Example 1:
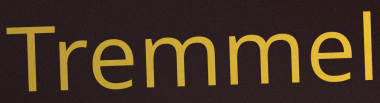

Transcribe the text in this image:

Tremmel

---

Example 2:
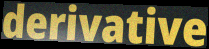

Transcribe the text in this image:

derivative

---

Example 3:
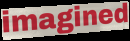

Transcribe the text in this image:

imagined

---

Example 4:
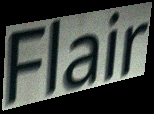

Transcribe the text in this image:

Flair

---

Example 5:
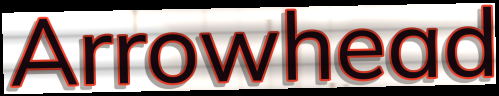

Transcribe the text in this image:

Arrowhead